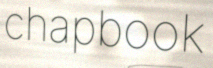
chapbook